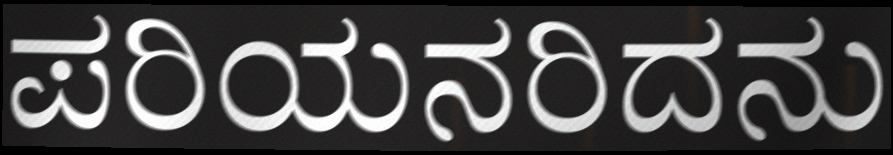
ಪರಿಯನರಿದನು